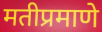
मतीप्रमाणे